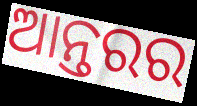
ଆନ୍ତରର